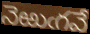
నెఱుఁగవే